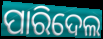
ପାରିଦେଲ